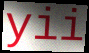
yii